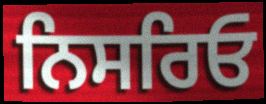
ਨਿਸਰਿਓ